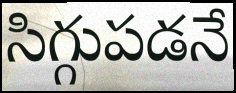
సిగ్గుపడనే